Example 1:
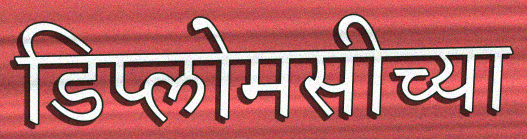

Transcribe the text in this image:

डिप्लोमसीच्या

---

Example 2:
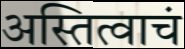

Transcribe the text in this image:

अस्तित्वाचं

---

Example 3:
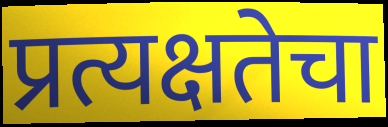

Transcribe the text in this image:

प्रत्यक्षतेचा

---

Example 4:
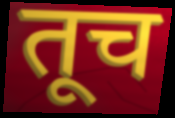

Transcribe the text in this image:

तूच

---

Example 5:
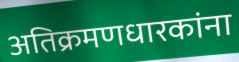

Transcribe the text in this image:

अतिक्रमणधारकांना